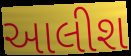
આલીશ